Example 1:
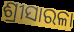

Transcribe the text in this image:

ଶ୍ରୀସାରଳା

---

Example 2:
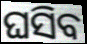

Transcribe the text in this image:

ଘସିବ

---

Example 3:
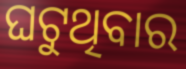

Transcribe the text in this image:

ଘଟୁଥିବାର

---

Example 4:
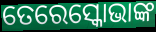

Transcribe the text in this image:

ତେରେସ୍କୋଭାଙ୍କ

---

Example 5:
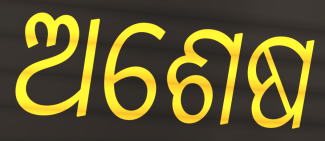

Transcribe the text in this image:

ଅଶେଷ